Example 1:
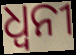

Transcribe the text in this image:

ଧ୍ୱନୀ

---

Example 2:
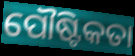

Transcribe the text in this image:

ପୌଷ୍ଟିକତା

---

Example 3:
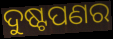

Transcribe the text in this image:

ଦୁଷ୍ଟପଣର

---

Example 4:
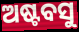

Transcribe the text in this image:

ଅଷ୍ଟବସୁ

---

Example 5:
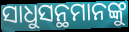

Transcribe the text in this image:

ସାଧୁସନ୍ଥମାନଙ୍କୁ